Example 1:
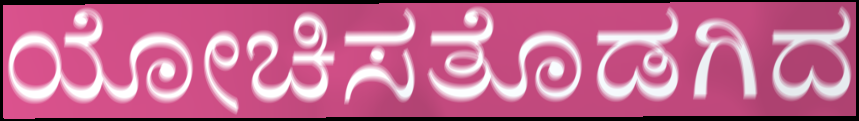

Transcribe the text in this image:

ಯೋಚಿಸತೊಡಗಿದ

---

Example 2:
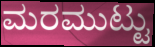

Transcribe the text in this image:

ಮರಮುಟ್ಟು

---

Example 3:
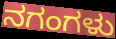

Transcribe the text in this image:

ನಗಂಗಳು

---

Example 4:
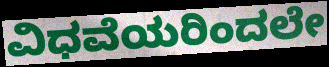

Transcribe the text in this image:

ವಿಧವೆಯರಿಂದಲೇ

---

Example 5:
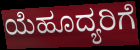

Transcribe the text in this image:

ಯೆಹೂದ್ಯರಿಗೆ